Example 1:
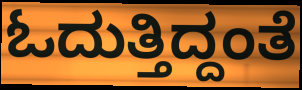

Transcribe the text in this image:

ಓದುತ್ತಿದ್ದಂತೆ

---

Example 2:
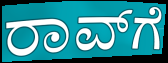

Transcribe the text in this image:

ರಾವ್‌ಗೆ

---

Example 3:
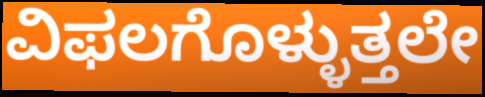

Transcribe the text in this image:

ವಿಫಲಗೊಳ್ಳುತ್ತಲೇ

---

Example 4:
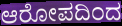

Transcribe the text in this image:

ಆರೋಪದಿಂದ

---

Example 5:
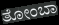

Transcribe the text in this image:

ತೋಂಬಾ